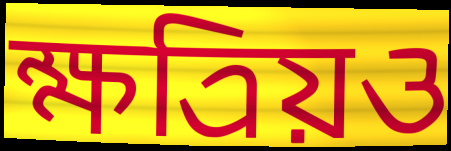
ক্ষত্রিয়ও